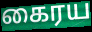
கைரய